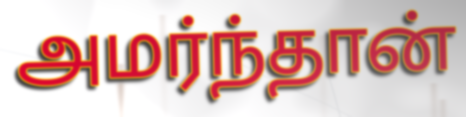
அமர்ந்தான்